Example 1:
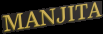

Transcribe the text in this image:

MANJITA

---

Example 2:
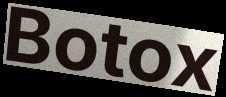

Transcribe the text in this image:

Botox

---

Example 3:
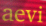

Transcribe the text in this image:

aevi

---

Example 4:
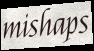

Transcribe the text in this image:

mishaps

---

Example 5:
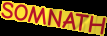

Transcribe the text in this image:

SOMNATH